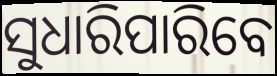
ସୁଧାରିପାରିବେ